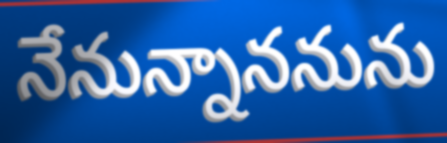
నేనున్నాననును